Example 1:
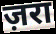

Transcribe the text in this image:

ज़रा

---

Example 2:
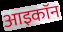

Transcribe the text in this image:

आइकॉन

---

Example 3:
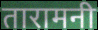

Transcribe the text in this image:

तारामनी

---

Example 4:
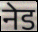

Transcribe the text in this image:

नेड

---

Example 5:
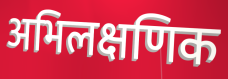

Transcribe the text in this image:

अभिलक्षणिक